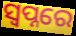
ସ୍ୱପ୍ନରେ